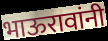
भाऊरावांनी